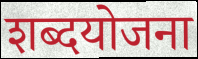
शब्दयोजना